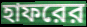
হাফরের